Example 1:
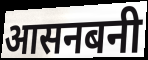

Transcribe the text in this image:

आसनबनी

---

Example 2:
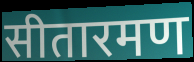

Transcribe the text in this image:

सीतारमण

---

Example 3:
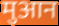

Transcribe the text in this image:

मुआन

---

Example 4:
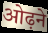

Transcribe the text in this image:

ओढ़ने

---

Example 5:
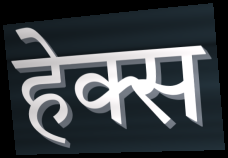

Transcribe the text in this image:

हेक्स